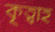
কৃত্বাহ